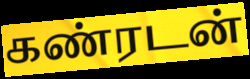
கண்ரடன்